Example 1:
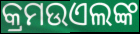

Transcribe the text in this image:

କ୍ରମଉଏଲଙ୍କ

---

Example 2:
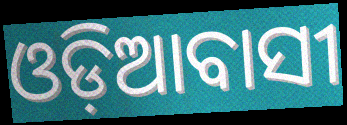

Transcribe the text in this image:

ଓଡ଼ିଆବାସୀ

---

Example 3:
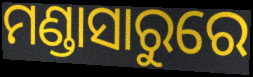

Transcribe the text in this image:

ମଣ୍ଡାସାରୁରେ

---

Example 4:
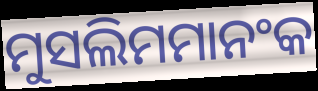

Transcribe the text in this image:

ମୁସଲିମମାନଂକ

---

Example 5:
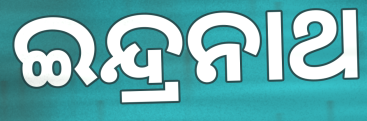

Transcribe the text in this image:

ଇନ୍ଦ୍ରନାଥ